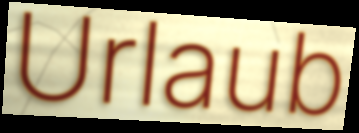
Urlaub